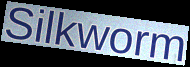
Silkworm